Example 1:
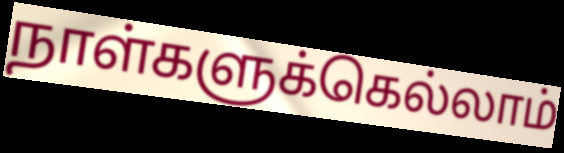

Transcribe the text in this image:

நாள்களுக்கெல்லாம்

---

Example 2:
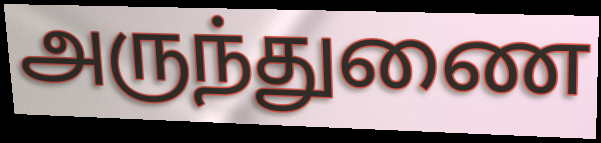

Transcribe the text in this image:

அருந்துணை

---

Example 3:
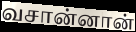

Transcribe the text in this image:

வசான்னான்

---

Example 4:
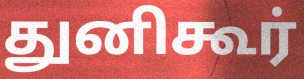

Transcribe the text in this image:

துனிகூர்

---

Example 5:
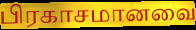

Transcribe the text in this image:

பிரகாசமானவை